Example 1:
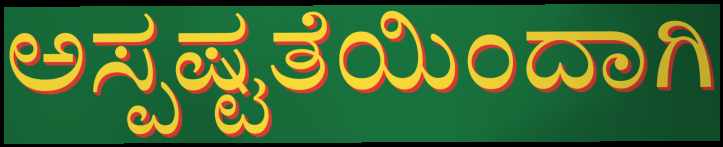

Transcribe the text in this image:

ಅಸ್ಪಷ್ಟತೆಯಿಂದಾಗಿ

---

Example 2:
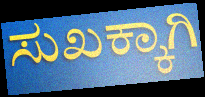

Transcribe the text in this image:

ಸುಖಕ್ಕಾಗಿ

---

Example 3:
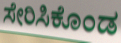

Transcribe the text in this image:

ಸೇರಿಸಿಕೊಂಡ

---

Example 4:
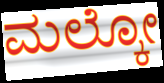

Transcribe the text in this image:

ಮಲ್ಕೋ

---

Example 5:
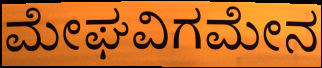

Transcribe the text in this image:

ಮೇಘವಿಗಮೇನ